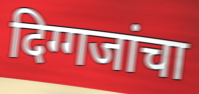
दिग्गजांचा